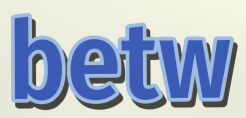
betw